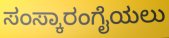
ಸಂಸ್ಕಾರಂಗೈಯಲು